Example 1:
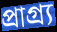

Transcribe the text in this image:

প্রাগ্র্য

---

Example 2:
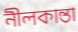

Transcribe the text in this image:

নীলকান্তা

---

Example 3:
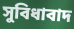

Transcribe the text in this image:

সুবিধাবাদ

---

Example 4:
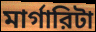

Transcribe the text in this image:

মার্গারিটা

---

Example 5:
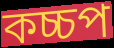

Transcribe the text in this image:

কচ্চপ